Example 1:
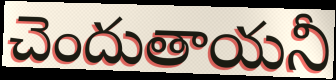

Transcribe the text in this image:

చెందుతాయనీ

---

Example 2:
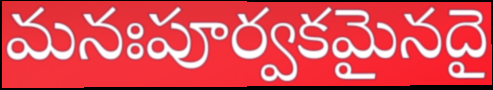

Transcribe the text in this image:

మనఃపూర్వకమైనదై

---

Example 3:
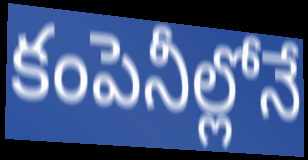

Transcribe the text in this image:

కంపెనీల్లోనే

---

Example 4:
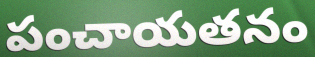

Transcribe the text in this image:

పంచాయతనం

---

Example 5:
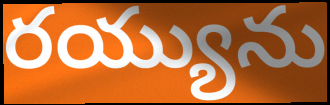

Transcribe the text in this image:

రయ్యును